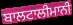
ਬਾਲਟਾਲੀਮਾਨੀ